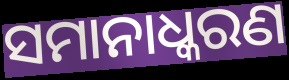
ସମାନାଧ୍କରଣ